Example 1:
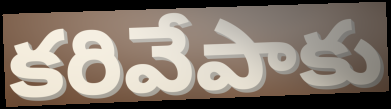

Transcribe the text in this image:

కరివేపాకు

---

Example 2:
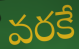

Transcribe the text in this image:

వరకే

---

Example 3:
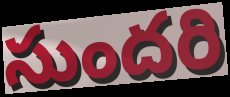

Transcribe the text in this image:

సుందరి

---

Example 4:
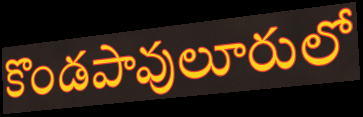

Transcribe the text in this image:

కొండపావులూరులో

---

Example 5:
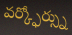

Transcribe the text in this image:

వర్క్ఫోర్స్ను